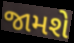
જામશે